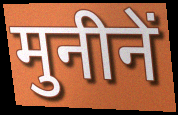
मुनीनें